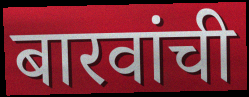
बारवांची